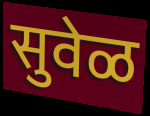
सुवेळ